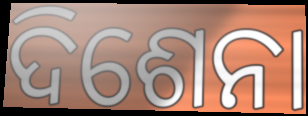
ଦିଶେନା